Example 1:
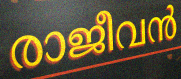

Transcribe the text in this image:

രാജീവൻ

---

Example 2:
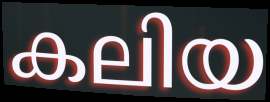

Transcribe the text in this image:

കലിയ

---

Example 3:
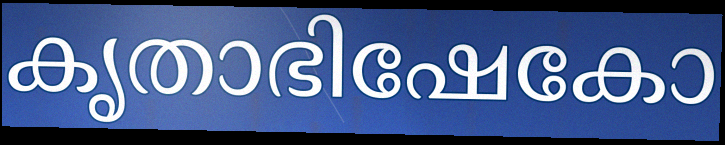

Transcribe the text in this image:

കൃതാഭിഷേകോ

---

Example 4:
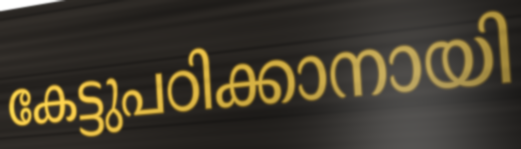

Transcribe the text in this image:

കേട്ടുപഠിക്കാനായി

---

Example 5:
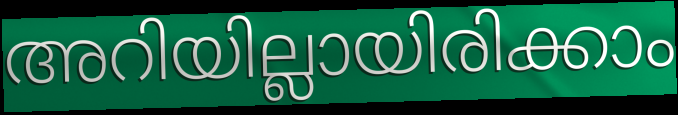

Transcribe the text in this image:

അറിയില്ലായിരിക്കാം